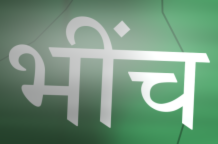
भींच